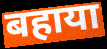
बहाया